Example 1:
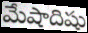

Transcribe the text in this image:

మేషాదిషు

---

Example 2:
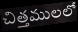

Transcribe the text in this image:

చిత్తములలో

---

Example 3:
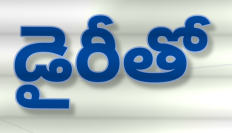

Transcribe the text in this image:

డైరీతో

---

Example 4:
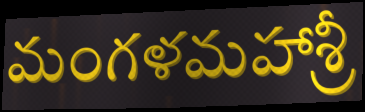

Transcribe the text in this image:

మంగళమహాశ్రీ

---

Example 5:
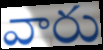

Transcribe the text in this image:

వారు